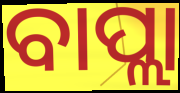
ବାପ୍ଲା